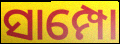
ସାମ୍ପୋ